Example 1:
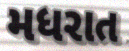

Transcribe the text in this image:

મધરાત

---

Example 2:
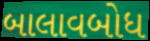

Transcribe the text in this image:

બાલાવબોધ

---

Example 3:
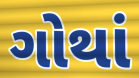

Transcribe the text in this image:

ગોથાં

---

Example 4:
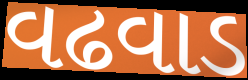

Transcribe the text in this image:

વઢવાડ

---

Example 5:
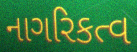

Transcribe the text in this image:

નાગરિકત્વ